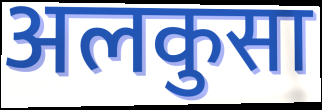
अलकुसा